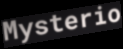
Mysterio